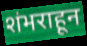
शंभराहून